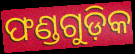
ଫଣ୍ଡଗୁଡ଼ିକ